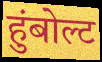
हुंबोल्ट